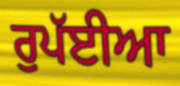
ਰੁਪੱਈਆ